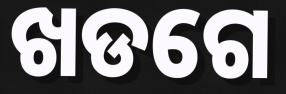
ଖଡଗେ